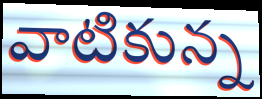
వాటికున్న